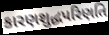
કારણશુદ્ધપરિણતિ